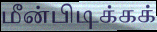
மீன்பிடிக்கக்